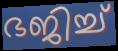
ഭജിച്ച്